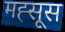
मह्सूस